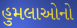
હુમલાઓનો